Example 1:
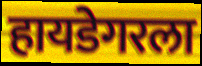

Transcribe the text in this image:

हायडेगरला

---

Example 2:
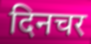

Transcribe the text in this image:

दिनचर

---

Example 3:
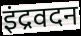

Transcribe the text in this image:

इंद्रवदन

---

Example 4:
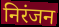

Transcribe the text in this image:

निरंजन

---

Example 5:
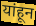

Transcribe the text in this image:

यांहून